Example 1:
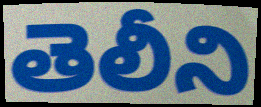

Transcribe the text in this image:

తెలీని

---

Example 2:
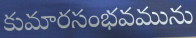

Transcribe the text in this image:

కుమారసంభవమును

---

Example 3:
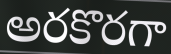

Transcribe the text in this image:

అరకొరగా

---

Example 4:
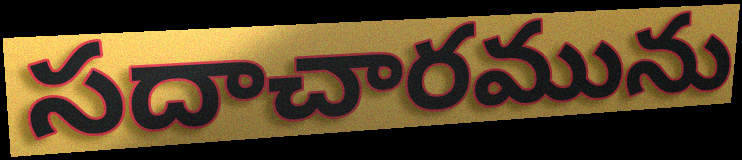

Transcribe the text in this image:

సదాచారమును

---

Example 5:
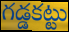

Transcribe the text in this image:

గడ్డకట్టు